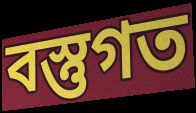
বস্তুগত